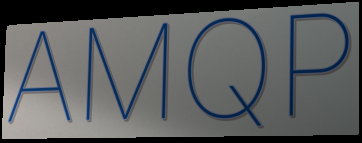
AMQP